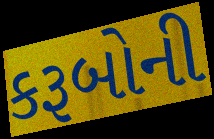
કરૂબોની